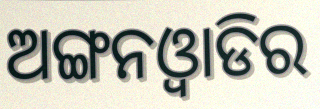
ଅଙ୍ଗନଓ୍ବାଡିର